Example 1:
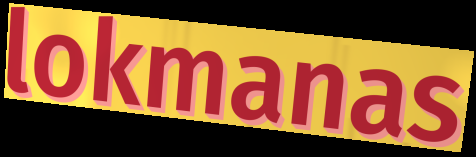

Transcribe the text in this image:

lokmanas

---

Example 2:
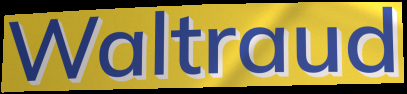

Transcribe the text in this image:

Waltraud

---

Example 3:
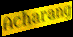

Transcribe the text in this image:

Acharang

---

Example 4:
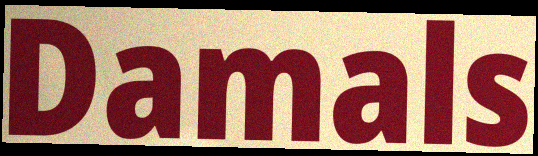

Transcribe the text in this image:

Damals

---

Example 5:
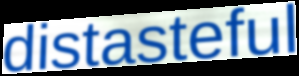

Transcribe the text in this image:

distasteful